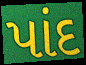
પાંદ